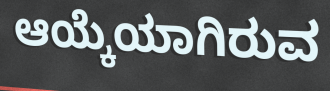
ಆಯ್ಕೆಯಾಗಿರುವ